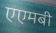
एएमबी